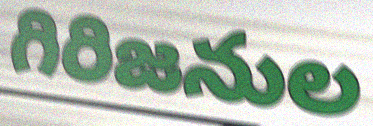
గిరిజనుల